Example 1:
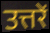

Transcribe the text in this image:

उत्तरें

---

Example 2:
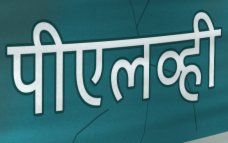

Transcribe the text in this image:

पीएलव्ही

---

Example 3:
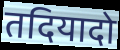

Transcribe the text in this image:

तदियादो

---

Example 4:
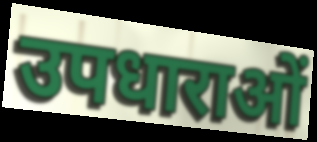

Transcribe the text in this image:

उपधाराओं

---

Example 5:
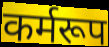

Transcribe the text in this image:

कर्मरूप